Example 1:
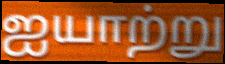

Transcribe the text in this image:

ஐயாற்று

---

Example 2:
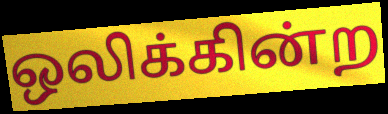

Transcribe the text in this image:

ஒலிக்கின்ற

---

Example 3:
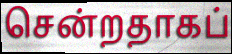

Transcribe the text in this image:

சென்றதாகப்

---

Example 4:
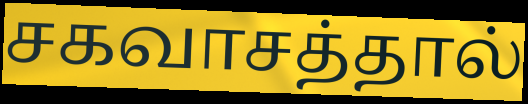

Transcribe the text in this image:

சகவாசத்தால்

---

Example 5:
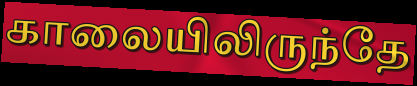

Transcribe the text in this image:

காலையிலிருந்தே